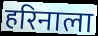
हरिनाला